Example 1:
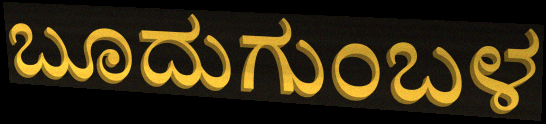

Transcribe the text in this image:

ಬೂದುಗುಂಬಳ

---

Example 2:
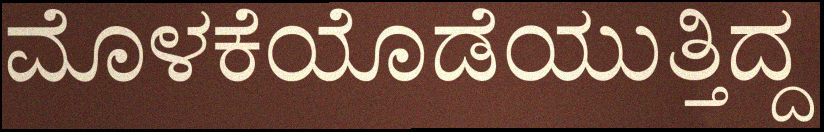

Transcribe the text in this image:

ಮೊಳಕೆಯೊಡೆಯುತ್ತಿದ್ದ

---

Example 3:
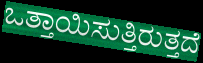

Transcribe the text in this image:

ಒತ್ತಾಯಿಸುತ್ತಿರುತ್ತದೆ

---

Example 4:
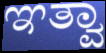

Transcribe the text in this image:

ಞತ್ವಾ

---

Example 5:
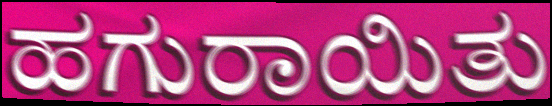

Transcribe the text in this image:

ಹಗುರಾಯಿತು